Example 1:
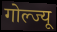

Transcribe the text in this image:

गोल्ज्यू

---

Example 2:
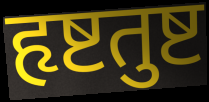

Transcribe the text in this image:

हृष्टतुष्ट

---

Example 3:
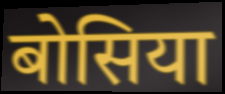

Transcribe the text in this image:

बोसिया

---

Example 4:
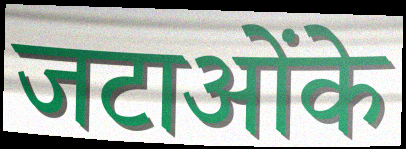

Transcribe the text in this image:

जटाओंके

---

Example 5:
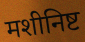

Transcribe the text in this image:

मशीनिष्ट